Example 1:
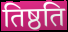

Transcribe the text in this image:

तिष्ठति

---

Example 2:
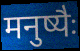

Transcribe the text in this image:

मनुष्यैः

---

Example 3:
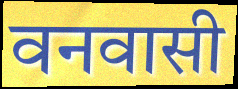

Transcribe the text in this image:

वनवासी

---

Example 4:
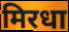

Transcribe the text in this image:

मिरधा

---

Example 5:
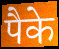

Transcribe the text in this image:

पैके